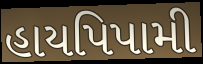
હાયપિપામી